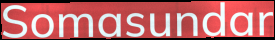
Somasundar